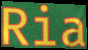
Ria